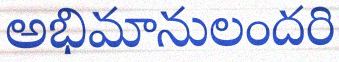
అభిమానులందరి